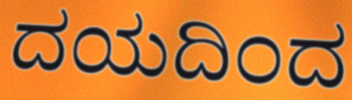
ದಯದಿಂದ